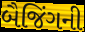
બૈજિંગની